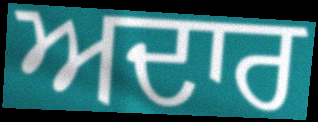
ਅਦਾਰ